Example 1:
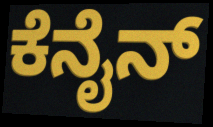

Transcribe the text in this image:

ಕೆನೈನ್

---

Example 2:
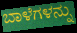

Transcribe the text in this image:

ಬಾಳೆಗಳನ್ನು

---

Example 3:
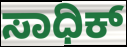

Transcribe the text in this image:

ಸಾಧಿಕ್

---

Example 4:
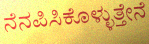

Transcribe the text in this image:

ನೆನಪಿಸಿಕೊಳ್ಳುತ್ತೇನೆ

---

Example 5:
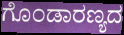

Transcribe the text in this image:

ಗೊಂಡಾರಣ್ಯದ